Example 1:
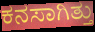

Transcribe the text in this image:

ಕನಸಾಗಿತ್ತು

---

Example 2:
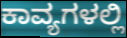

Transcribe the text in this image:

ಕಾವ್ಯಗಳಲ್ಲಿ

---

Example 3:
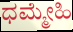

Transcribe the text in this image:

ಧಮ್ಮೇಹಿ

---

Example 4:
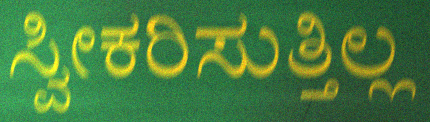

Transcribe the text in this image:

ಸ್ವೀಕರಿಸುತ್ತಿಲ್ಲ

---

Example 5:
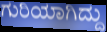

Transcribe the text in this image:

ಗುರಿಯಾಗಿದ್ದು